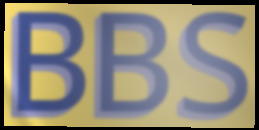
BBS